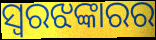
ସ୍ୱରଝଙ୍କାରର